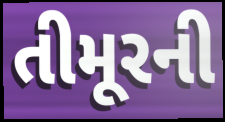
તીમૂરની